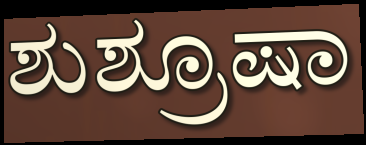
ಶುಶ್ರೂಷಾ